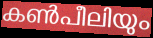
കൺപീലിയും